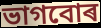
ভাগবোৰ